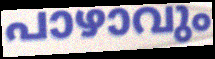
പാഴാവും